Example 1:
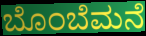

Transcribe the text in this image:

ಬೊಂಬೆಮನೆ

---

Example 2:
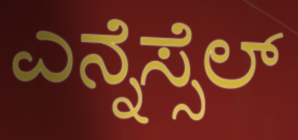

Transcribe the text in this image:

ಎನ್ನೆಸ್ಸೆಲ್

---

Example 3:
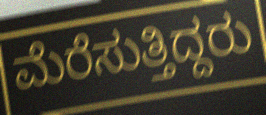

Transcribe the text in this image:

ಮೆರೆಸುತ್ತಿದ್ದರು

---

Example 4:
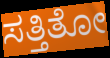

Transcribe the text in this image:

ಸತ್ತಿತೋ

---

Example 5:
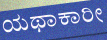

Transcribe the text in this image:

ಯಥಾಕಾರೀ